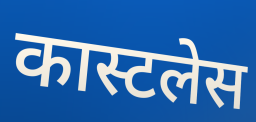
कास्टलेस